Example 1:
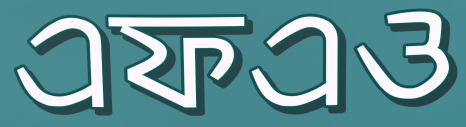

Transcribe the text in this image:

এফএও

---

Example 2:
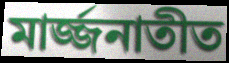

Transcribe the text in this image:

মার্জ্জনাতীত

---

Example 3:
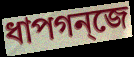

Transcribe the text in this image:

ধাপগন্জে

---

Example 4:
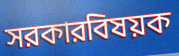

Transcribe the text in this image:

সরকারবিষয়ক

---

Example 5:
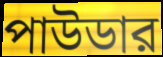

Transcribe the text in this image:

পাউডার